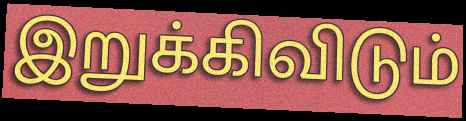
இறுக்கிவிடும்